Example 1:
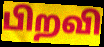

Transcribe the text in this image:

பிறவி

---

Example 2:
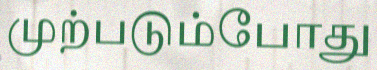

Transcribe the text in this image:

முற்படும்போது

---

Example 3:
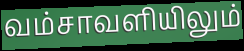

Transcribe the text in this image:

வம்சாவளியிலும்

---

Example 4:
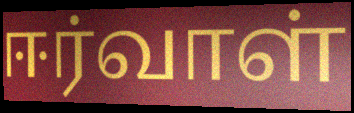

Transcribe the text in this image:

ஈர்வாள்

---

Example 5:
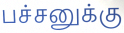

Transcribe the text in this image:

பச்சனுக்கு